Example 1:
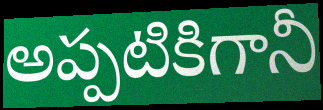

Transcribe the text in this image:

అప్పటికిగానీ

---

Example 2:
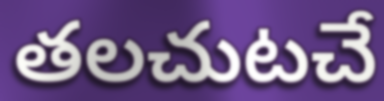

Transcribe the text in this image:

తలచుటచే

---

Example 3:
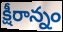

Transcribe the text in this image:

క్షీరాన్నం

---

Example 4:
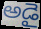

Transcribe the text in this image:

అడై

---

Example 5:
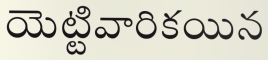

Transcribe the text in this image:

యెట్టివారికయిన